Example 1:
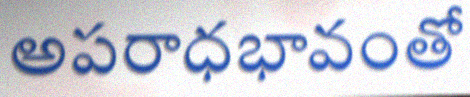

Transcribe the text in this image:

అపరాధభావంతో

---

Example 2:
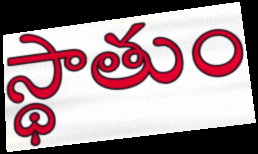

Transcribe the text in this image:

స్థాతుం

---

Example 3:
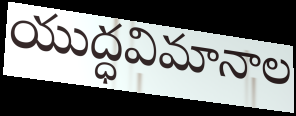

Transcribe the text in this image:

యుద్ధవిమానాల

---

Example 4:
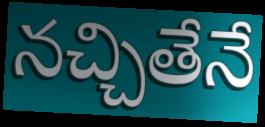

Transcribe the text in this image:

నచ్చితేనే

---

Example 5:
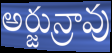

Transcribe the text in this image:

అర్జున్రావు